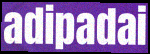
adipadai